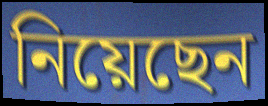
নিয়েছেন